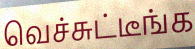
வெச்சுட்டீங்க